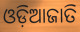
ଓଡ଼ିଆଜାତି